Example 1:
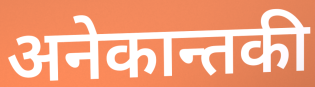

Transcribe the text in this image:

अनेकान्तकी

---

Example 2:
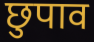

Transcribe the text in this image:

छुपाव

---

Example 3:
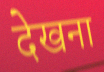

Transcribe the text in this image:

देखना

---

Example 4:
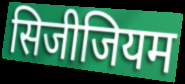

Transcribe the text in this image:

सिजीजियम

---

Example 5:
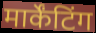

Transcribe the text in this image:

मार्केंटिंग